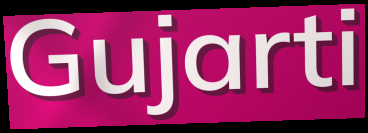
Gujarti